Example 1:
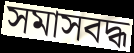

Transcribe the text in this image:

সমাসবদ্ধ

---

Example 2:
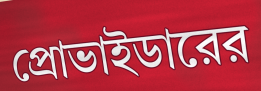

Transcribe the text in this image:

প্রোভাইডারের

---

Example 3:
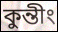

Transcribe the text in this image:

কুন্তীং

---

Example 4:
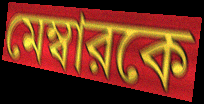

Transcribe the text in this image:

মেম্বারকে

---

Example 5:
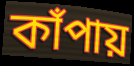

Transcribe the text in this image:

কাঁপায়